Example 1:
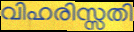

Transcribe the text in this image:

വിഹരിസ്സതി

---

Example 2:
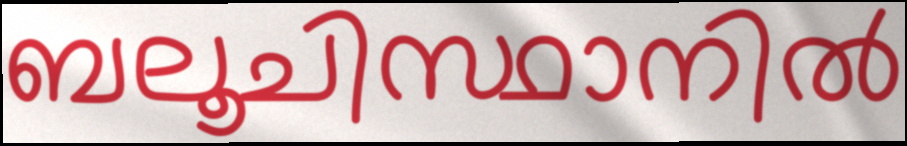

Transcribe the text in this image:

ബലൂചിസ്ഥാനിൽ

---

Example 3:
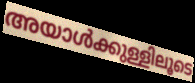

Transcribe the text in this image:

അയാൾക്കുള്ളിലൂടെ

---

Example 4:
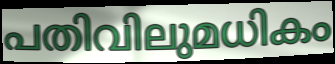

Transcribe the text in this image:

പതിവിലുമധികം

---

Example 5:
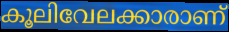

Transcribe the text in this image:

കൂലിവേലക്കാരാണ്